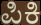
ಪಿಕಿ